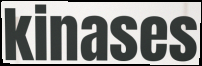
kinases